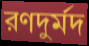
রণদুর্মদ